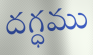
దగ్ధము